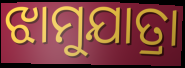
ଝାମୁଯାତ୍ରା